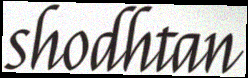
shodhtan